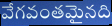
వేగవంతమైనది